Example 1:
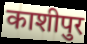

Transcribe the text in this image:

काशीपुर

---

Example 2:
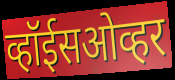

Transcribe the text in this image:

व्हॉईसओव्हर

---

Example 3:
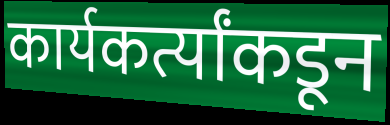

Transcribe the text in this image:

कार्यकर्त्यांकडून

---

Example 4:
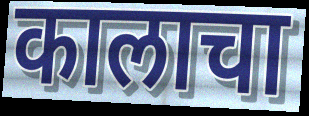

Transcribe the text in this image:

कालाचा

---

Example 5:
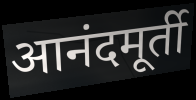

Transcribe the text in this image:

आनंदमूर्ती